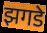
झगडे